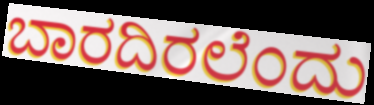
ಬಾರದಿರಲೆಂದು